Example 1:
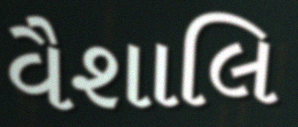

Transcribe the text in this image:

વૈશાલિ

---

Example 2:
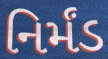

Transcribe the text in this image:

નિર્મંડ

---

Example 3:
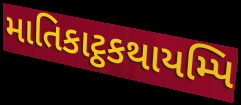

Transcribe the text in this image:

માતિકાટ્ઠકથાયમ્પિ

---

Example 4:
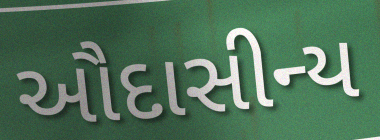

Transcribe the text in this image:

ઔદાસીન્ય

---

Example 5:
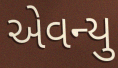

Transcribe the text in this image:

એવન્યુ